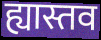
ह्यास्तव